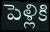
పెళ్లికి